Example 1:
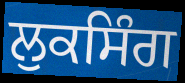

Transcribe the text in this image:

ਲੁਕਸਿੰਗ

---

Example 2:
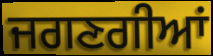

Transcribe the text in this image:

ਜਗਣਗੀਆਂ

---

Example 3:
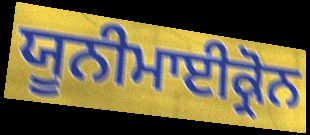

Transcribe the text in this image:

ਯੂਨੀਮਾਈਕ੍ਰੋਨ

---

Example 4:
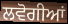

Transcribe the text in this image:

ਲਵੋਗੀਆਂ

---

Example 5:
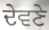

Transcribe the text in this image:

ਦੇਵਣੇ